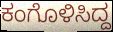
ಕಂಗೊಳಿಸಿದ್ದ